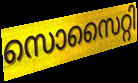
സൊസൈറ്റി